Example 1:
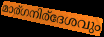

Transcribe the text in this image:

മാര്ഗനിര്ദേശവും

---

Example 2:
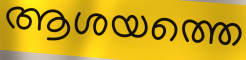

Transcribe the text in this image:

ആശയത്തെ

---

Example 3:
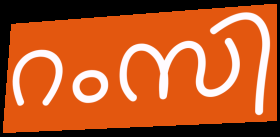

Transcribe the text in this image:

റംസി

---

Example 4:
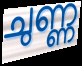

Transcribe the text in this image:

ചുണ്ണ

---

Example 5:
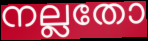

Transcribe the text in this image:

നല്ലതോ